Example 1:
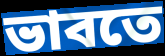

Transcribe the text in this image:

ভাবতে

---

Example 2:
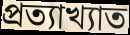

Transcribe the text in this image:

প্রত্যাখ্যাত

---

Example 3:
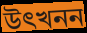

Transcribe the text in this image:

উৎখনন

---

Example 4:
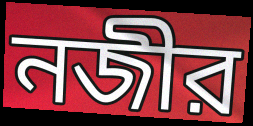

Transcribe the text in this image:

নজীর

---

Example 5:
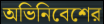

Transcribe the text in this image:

অভিনিবেশের